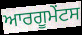
ਆਰਗੂਮੇੰਟਸ